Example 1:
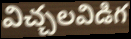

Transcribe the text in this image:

విచ్చలవిడిగ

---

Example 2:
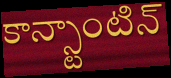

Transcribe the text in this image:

కాన్స్టాంటిన్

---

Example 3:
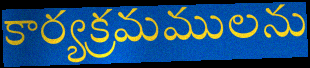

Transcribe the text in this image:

కార్యక్రమములను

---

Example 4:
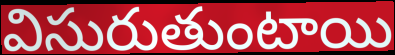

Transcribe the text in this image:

విసురుతుంటాయి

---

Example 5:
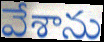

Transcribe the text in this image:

వేశాను